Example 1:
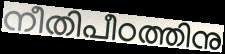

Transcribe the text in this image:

നീതിപീഠത്തിനു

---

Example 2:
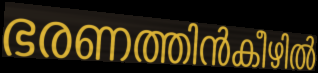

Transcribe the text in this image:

ഭരണത്തിൻകീഴിൽ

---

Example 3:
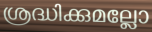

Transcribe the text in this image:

ശ്രദ്ധിക്കുമല്ലോ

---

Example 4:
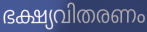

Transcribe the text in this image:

ഭക്ഷ്യവിതരണം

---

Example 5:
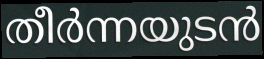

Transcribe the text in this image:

തീർന്നയുടൻ